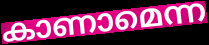
കാണാമെന്ന